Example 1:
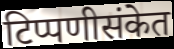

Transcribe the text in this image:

टिप्पणीसंकेत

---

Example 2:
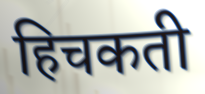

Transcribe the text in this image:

हिचकती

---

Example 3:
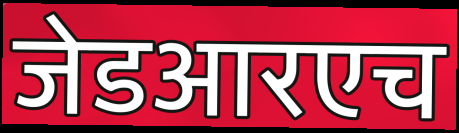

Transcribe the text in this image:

जेडआरएच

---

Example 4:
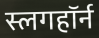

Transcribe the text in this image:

स्लगहॉर्न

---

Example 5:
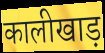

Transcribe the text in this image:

कालीखाड़